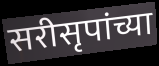
सरीसृपांच्या